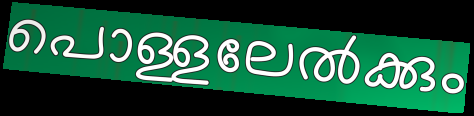
പൊള്ളലേൽക്കും